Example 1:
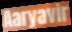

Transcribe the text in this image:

Aaryavir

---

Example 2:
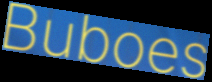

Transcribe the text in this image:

Buboes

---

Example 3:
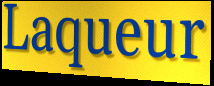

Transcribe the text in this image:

Laqueur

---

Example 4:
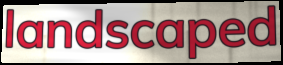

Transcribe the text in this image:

landscaped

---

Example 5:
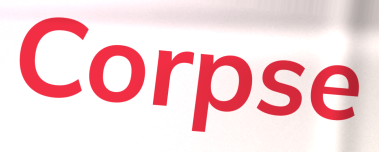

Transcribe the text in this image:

Corpse